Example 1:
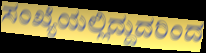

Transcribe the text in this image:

ಸಂಖ್ಯೆಯಲ್ಲಿದ್ದುದರಿಂದ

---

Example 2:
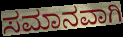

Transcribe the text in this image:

ಸಮಾನವಾಗಿ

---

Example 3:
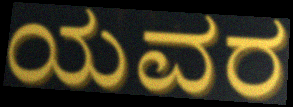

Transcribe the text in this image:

ಯವರ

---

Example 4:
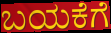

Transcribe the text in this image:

ಬಯಕೆಗೆ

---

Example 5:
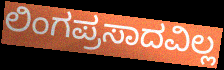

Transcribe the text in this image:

ಲಿಂಗಪ್ರಸಾದವಿಲ್ಲ